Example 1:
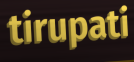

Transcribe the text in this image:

tirupati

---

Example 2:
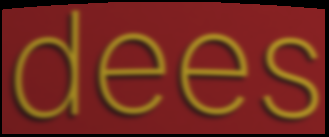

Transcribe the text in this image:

dees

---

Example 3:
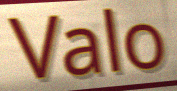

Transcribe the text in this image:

Valo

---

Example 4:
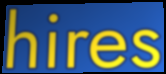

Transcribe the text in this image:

hires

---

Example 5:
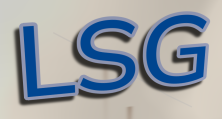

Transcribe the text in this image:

LSG